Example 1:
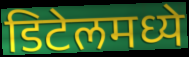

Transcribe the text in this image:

डिटेलमध्ये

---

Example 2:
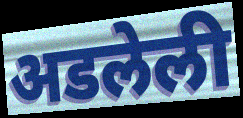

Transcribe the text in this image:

अडलेली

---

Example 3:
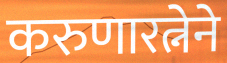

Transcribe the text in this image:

करुणारत्नेने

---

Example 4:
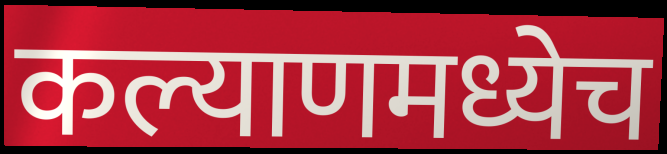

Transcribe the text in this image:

कल्याणमध्येच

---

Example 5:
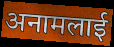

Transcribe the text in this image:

अनामलाई